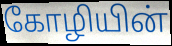
கோழியின்